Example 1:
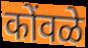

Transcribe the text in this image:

कोंवळे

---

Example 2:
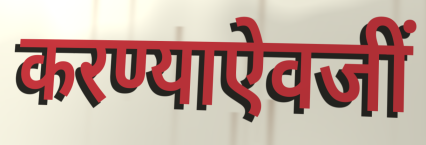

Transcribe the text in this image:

करण्याऐवजीं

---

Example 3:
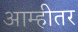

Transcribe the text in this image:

आम्हीतर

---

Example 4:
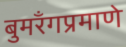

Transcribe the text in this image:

बुमरँगप्रमाणे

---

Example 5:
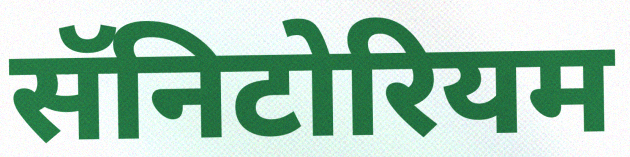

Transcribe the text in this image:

सॅनिटोरियम